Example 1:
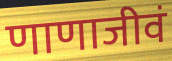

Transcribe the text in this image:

णाणाजीवं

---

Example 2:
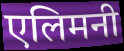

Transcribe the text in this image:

एलिमनी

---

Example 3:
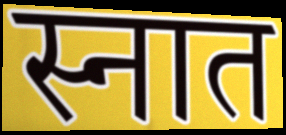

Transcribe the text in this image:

स्नात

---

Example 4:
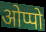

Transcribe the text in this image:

ओप्पो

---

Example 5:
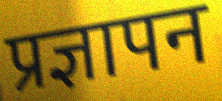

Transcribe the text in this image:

प्रज्ञापन